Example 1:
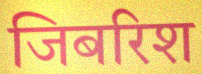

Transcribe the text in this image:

जिबरिश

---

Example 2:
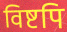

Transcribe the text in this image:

विष्टपि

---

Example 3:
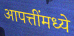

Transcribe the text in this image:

आपत्तींमध्ये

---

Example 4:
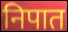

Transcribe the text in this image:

निपात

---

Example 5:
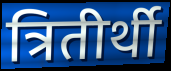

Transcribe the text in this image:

त्रितीर्थी